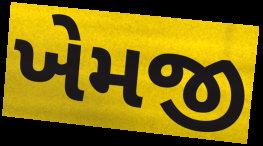
ખેમજી